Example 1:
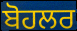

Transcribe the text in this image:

ਬੋਹਲਰ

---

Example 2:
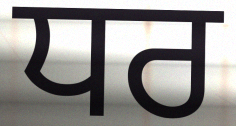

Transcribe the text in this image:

ਧਰ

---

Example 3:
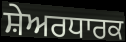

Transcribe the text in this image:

ਸ਼ੇਅਰਧਾਰਕ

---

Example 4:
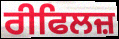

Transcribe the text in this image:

ਰੀਫਿਲਜ਼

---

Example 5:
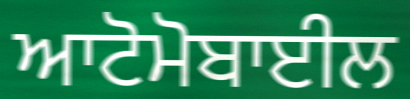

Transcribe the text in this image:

ਆਟੋਮੋਬਾਈਲ